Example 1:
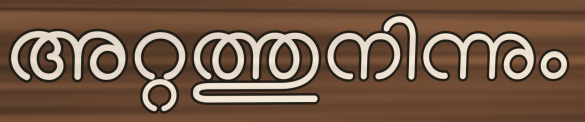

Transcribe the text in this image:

അറ്റത്തുനിന്നും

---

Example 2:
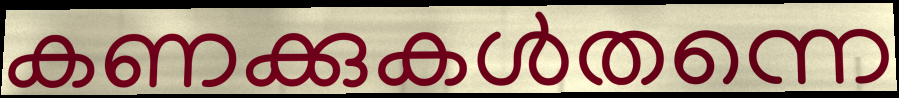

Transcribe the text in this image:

കണക്കുകൾതന്നെ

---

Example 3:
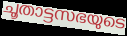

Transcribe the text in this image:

ചൂതാട്ടസഭയുടെ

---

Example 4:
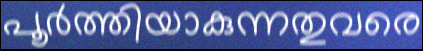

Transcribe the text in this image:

പൂർത്തിയാകുന്നതുവരെ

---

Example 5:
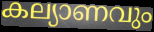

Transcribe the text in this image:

കല്യാണവും